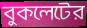
বুকলেটের